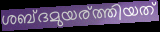
ശബ്ദമുയര്ത്തിയത്